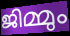
ജിമ്മും